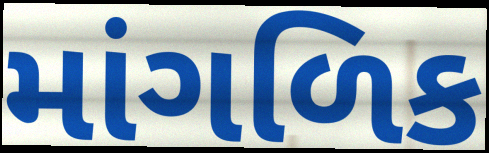
માંગળિક